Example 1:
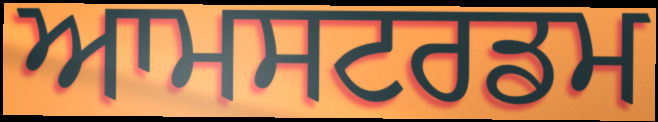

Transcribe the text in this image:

ਆਮਸਟਰਡਮ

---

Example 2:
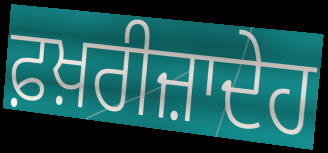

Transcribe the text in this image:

ਫ਼ਖ਼ਰੀਜ਼ਾਦੇਹ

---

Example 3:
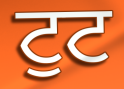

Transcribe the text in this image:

ਟੁਟ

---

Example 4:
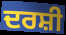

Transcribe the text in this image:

ਦਰਸ਼ੀ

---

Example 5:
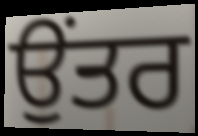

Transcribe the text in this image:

ਉਂਤਰ